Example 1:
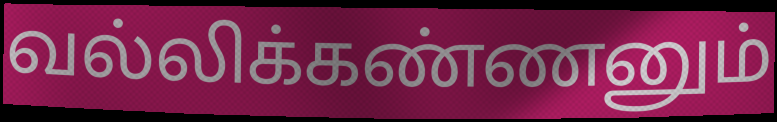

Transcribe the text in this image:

வல்லிக்கண்ணனும்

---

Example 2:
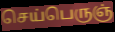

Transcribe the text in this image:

செய்பெருஞ்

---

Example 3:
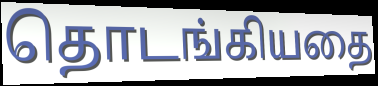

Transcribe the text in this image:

தொடங்கியதை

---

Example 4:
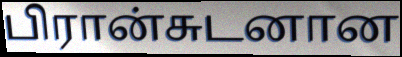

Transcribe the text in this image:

பிரான்சுடனான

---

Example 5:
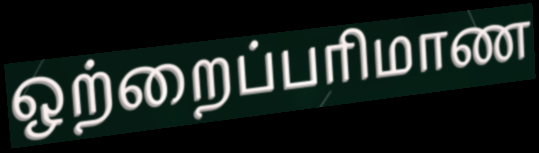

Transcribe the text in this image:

ஒற்றைப்பரிமாண